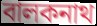
বালকনাথ